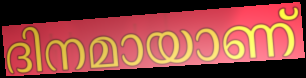
ദിനമായാണ്